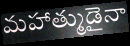
మహాత్ముడైనా